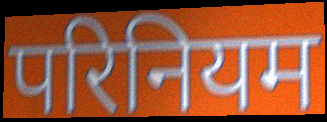
परिनियम